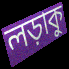
লড়াকু